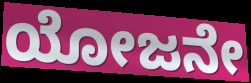
ಯೋಜನೇ